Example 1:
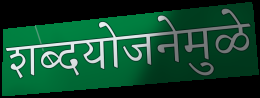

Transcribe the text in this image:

शब्दयोजनेमुळे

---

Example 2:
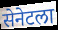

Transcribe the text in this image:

सेनेटला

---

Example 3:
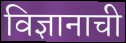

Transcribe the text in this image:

विज्ञानाची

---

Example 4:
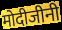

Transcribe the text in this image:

मोदीजीनी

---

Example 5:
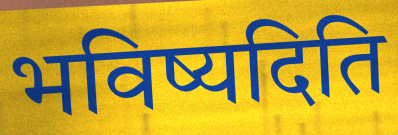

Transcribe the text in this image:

भविष्यदिति